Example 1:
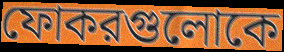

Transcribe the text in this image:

ফোকরগুলোকে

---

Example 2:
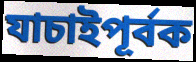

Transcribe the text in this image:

যাচাইপূর্বক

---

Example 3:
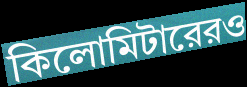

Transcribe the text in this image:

কিলোমিটারেরও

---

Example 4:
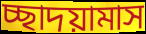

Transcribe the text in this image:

চ্ছাদয়ামাস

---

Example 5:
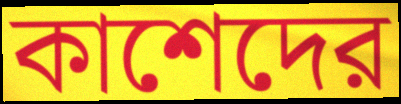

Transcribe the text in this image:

কাশেদের